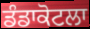
ਡੰਡਾਕੋਟਲਾ